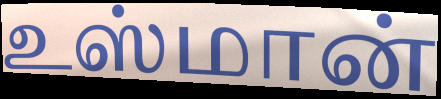
உஸ்மான்